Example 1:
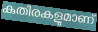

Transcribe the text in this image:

കുതിരകളുമാണ്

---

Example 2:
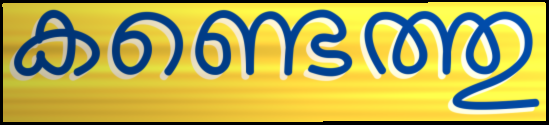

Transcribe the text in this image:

കണ്ടെത്തു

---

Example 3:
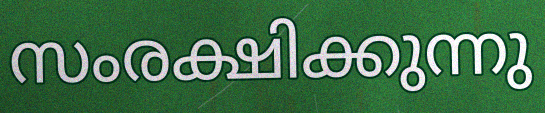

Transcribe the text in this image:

സംരക്ഷിക്കുന്നു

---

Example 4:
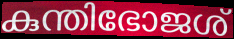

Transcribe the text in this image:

കുന്തിഭോജശ്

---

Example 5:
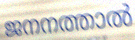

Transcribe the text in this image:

ജനനത്താൽ